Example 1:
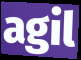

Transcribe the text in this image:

agil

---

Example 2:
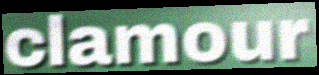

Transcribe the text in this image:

clamour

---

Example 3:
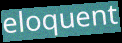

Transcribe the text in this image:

eloquent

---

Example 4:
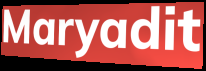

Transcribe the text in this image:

Maryadit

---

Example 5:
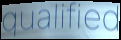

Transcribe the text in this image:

qualified